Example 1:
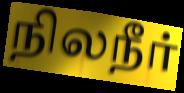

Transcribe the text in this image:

நிலநீர்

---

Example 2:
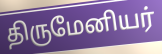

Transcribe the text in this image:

திருமேனியர்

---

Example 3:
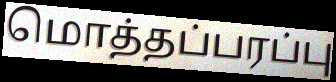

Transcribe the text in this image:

மொத்தப்பரப்பு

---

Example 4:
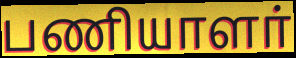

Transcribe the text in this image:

பணியாளர்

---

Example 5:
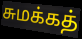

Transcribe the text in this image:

சுமக்கத்